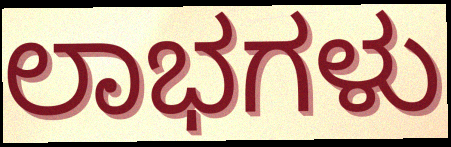
ಲಾಭಗಳು